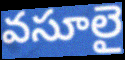
వసూలై